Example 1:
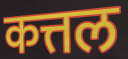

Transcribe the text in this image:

कत्तल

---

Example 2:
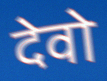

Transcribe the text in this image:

देवो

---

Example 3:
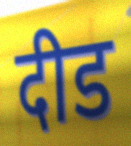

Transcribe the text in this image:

दीड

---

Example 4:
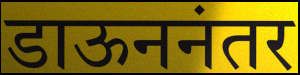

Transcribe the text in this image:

डाऊननंतर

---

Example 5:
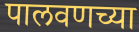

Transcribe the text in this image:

पालवणच्या